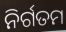
ନିର୍ଗତମ